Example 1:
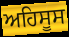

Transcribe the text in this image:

ਅਹਿਸੂਸ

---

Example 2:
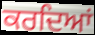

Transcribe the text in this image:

ਕਰਦਿਆਂ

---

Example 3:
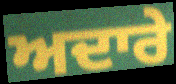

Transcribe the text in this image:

ਅਦਾਰੇ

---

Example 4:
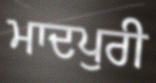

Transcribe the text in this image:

ਮਾਦਪੁਰੀ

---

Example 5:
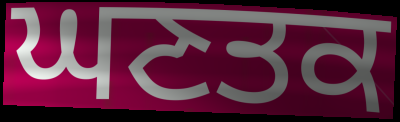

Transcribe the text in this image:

ਘਣਤਕ